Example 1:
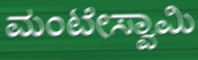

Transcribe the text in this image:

ಮಂಟೇಸ್ವಾಮಿ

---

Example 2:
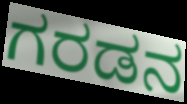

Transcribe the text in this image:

ಗರಡನ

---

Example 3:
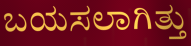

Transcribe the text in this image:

ಬಯಸಲಾಗಿತ್ತು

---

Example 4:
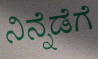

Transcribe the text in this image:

ನಿನ್ನೆಡೆಗೆ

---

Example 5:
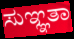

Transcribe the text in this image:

ಸುಞ್ಞತಾ